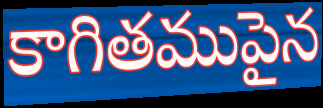
కాగితముపైన